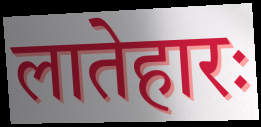
लातेहारः